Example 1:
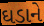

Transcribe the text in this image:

ઘડાને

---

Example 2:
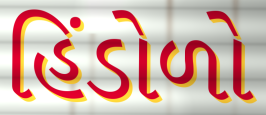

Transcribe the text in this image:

હિંડોળો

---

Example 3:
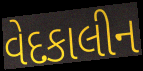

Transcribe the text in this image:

વેદકાલીન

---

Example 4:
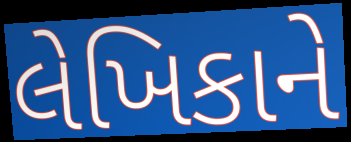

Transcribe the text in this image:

લેખિકાને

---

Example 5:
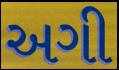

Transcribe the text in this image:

અગી